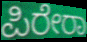
ಪಿರೇರಾ